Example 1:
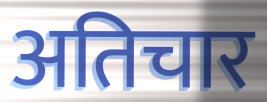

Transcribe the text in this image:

अतिचार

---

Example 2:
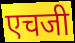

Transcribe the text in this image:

एचजी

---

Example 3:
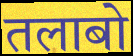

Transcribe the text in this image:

तलाबो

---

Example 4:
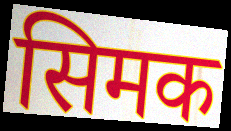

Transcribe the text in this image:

सिमक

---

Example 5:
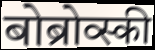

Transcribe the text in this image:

बोब्रोव्स्की